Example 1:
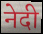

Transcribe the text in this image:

नेदी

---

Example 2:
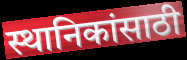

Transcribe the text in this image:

स्थानिकांसाठी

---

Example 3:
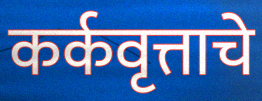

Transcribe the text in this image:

कर्कवृत्ताचे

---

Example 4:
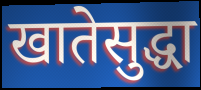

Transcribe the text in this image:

खातेसुद्धा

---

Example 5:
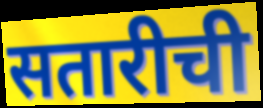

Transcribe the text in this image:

सतारीची